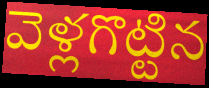
వెళ్లగొట్టిన